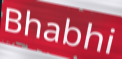
Bhabhi